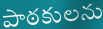
పాఠకులను